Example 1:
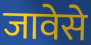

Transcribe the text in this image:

जावेसे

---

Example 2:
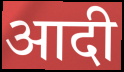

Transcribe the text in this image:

आदी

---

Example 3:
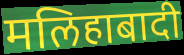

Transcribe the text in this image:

मलिहाबादी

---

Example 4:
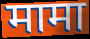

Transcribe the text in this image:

मामा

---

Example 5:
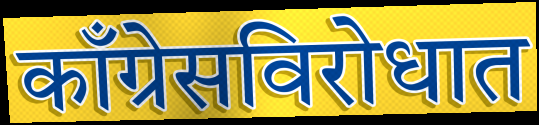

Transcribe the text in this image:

काँग्रेसविरोधात